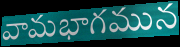
వామభాగమున